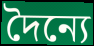
দৈন্যে